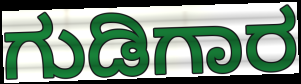
ಗುಡಿಗಾರ